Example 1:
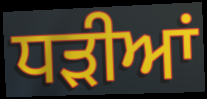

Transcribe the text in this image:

ਧੜੀਆਂ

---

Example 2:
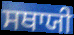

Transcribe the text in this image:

ਸਥਾਯੀ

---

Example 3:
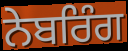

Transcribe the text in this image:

ਨੇਬਰਿੰਗ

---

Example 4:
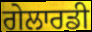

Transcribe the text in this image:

ਗੇਲਾਰਡੀ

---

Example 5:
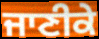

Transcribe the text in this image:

ਜਾਣੀਕੇ